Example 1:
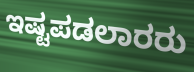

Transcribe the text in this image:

ಇಷ್ಟಪಡಲಾರರು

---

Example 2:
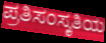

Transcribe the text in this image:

ಪ್ರತಿಸಂಸ್ಕೃತಿಯ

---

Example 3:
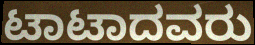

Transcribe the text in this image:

ಟಾಟಾದವರು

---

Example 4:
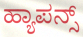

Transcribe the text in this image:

ಹ್ಯಾಪನ್ಸ್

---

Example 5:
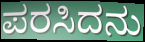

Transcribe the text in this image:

ಪರಸಿದನು